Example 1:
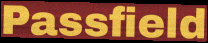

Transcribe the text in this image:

Passfield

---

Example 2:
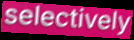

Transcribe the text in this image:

selectively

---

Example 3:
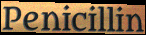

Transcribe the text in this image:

Penicillin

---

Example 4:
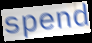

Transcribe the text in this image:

spend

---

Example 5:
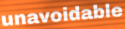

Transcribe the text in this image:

unavoidable